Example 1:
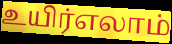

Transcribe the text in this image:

உயிர்எலாம்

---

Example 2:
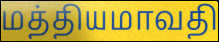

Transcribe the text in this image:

மத்தியமாவதி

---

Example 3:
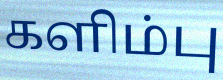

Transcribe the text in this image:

களிம்பு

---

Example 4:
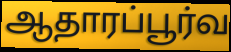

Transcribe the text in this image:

ஆதாரப்பூர்வ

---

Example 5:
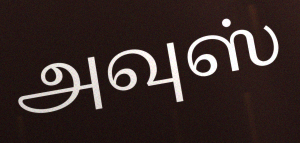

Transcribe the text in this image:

அவுஸ்